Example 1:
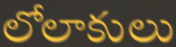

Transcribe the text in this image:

లోలాకులు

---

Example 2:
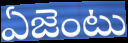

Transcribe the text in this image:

ఏజెంటు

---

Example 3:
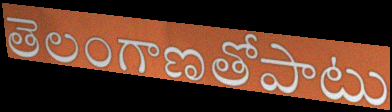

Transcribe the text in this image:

తెలంగాణతోపాటు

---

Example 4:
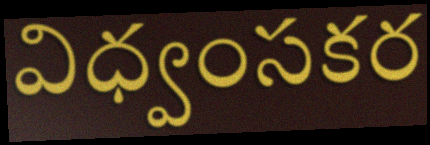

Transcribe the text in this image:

విధ్వంసకర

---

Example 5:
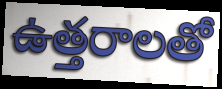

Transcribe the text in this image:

ఉత్తరాలతో